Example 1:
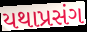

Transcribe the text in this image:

યથાપ્રસંગ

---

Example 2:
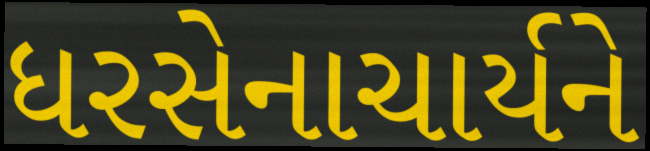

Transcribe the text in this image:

ધરસેનાચાર્યને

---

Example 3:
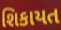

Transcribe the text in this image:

શિકાયત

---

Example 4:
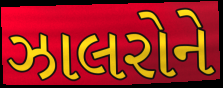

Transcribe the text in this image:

ઝાલરોને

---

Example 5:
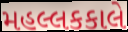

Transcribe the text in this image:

મહલ્લકકાલે